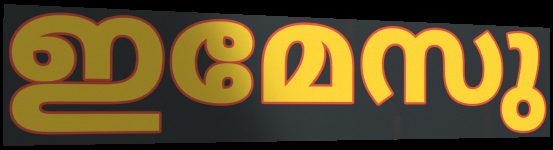
ഇമേസു